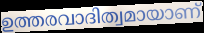
ഉത്തരവാദിത്വമായാണ്